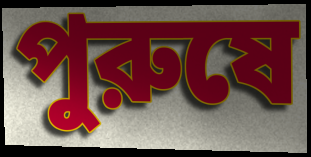
পুরুষে